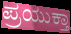
ಪ್ರಯುಕ್ತಾ